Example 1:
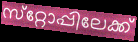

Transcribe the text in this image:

സ്‌റ്റോപ്പിലേക്ക്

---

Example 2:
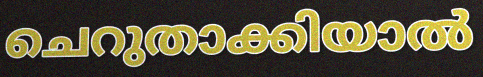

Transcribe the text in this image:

ചെറുതാക്കിയാൽ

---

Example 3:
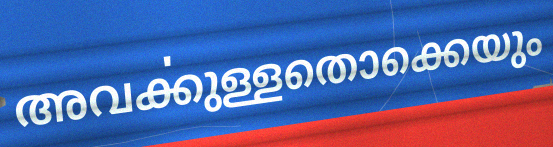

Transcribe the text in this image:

അവൎക്കുള്ളതൊക്കെയും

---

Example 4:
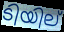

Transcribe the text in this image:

ടിയില്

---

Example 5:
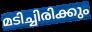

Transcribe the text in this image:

മടിച്ചിരിക്കും